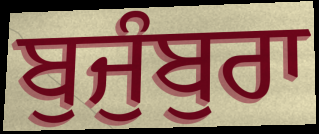
ਬੁਜੁੰਬੁਰਾ